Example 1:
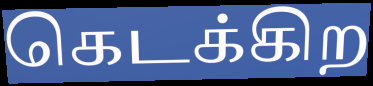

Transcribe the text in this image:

கெடக்கிற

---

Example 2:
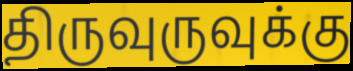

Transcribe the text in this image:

திருவுருவுக்கு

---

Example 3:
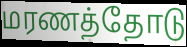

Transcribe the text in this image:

மரணத்தோடு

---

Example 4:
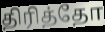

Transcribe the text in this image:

திரித்தோ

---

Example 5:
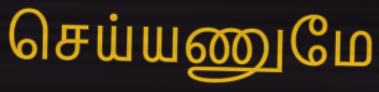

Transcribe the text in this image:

செய்யணுமே